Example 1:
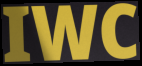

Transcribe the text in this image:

IWC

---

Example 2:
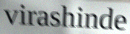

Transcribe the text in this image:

virashinde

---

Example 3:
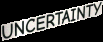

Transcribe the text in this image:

UNCERTAINTY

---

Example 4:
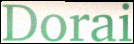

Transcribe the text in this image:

Dorai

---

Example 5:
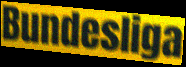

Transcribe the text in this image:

Bundesliga